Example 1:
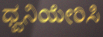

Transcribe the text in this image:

ಧ್ವನಿಯೇರಿಸಿ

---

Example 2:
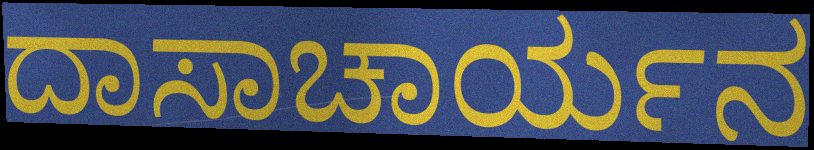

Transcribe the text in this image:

ದಾಸಾಚಾರ್ಯನ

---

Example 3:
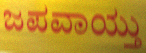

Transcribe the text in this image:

ಜಪವಾಯ್ತು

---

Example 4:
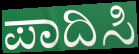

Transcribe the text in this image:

ಪಾದಿಸಿ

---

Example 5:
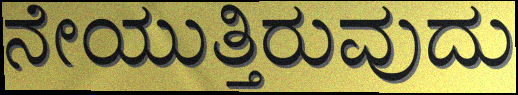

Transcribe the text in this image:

ನೇಯುತ್ತಿರುವುದು